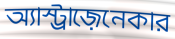
অ্যাস্ট্রাজ়েনেকার